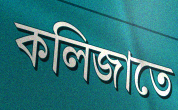
কলিজাতে